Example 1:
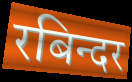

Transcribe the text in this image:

रबिन्दर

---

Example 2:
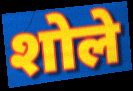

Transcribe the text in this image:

शोले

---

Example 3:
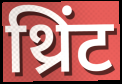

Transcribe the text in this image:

थ्रिंट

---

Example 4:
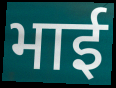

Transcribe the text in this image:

भार्ई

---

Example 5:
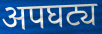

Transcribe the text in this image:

अपघट्य